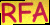
RFA